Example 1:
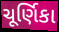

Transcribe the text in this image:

ચૂર્ણિકા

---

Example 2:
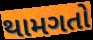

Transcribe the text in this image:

થામગતો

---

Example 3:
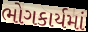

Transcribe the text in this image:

ભોગકાર્યમાં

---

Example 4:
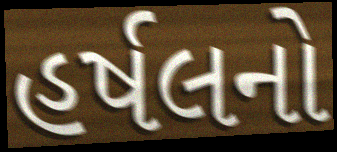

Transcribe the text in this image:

હર્ષલનો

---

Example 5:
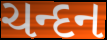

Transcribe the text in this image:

ચન્દન